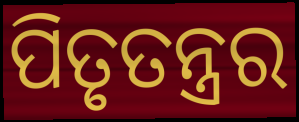
ପିତୃତନ୍ତ୍ରର